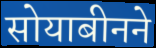
सोयाबीनने